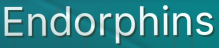
Endorphins